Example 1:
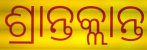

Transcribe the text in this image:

ଶ୍ରାନ୍ତକ୍ଲାନ୍ତ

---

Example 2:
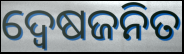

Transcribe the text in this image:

ଦ୍ଵେଷଜନିତ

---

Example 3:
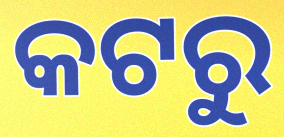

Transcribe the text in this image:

କଟରୁ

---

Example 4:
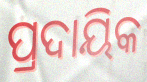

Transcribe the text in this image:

ପ୍ରଦାୟିକ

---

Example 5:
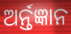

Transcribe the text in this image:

ଅର୍ନ୍ତଜ୍ଞାନ